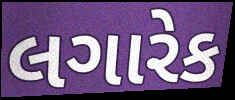
લગારેક